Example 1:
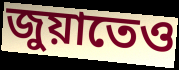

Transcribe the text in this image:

জুয়াতেও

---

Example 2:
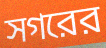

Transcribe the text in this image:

সগরের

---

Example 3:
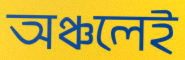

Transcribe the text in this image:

অঞ্চলেই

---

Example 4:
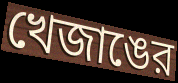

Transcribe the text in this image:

খেজাঙের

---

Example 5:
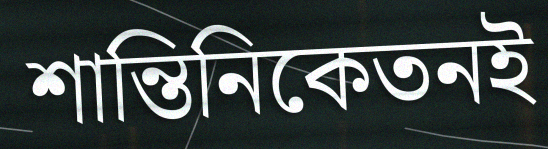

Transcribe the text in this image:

শান্তিনিকেতনই